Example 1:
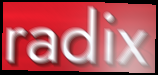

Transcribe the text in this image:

radix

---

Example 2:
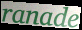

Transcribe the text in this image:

ranade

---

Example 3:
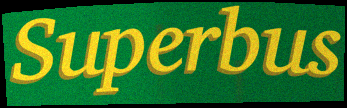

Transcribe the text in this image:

Superbus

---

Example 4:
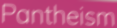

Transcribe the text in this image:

Pantheism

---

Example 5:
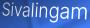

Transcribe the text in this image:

Sivalingam